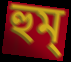
হুম্